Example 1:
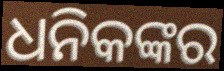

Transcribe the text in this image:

ଧନିକଙ୍କର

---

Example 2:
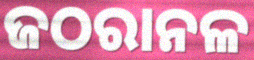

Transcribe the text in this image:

ଜଠରାନଳ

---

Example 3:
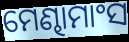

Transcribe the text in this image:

ମେଣ୍ଢାମାଂସ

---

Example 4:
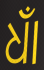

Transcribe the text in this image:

ଧାଁ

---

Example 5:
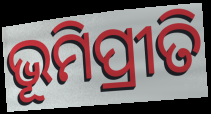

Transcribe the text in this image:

ଭୂମିପ୍ରୀତି